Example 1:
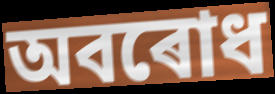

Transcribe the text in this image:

অবৰোধ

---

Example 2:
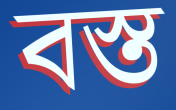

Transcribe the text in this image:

বস্ত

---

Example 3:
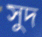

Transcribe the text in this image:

সুদ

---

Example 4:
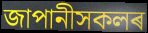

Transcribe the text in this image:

জাপানীসকলৰ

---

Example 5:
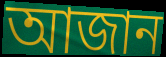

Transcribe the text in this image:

আজান